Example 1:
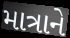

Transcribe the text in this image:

માત્રાને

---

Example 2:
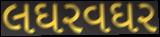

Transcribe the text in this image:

લઘરવઘર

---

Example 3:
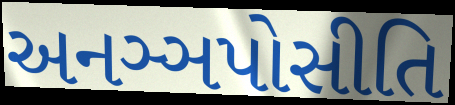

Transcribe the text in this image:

અનઞ્ઞપોસીતિ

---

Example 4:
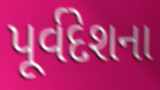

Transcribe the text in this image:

પૂર્વદેશના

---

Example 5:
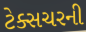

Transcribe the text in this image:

ટેક્સચરની